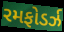
રમફોડર્ઝ